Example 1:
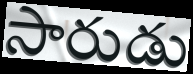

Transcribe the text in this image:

సారుడు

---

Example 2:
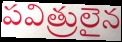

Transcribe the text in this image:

పవిత్రులైన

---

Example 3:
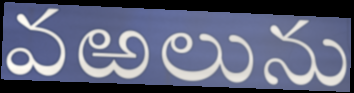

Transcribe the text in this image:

వఱలును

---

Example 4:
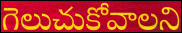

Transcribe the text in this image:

గెలుచుకోవాలని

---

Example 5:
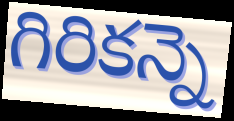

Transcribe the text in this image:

గిరికన్నె